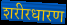
शरीरधारण